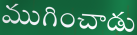
ముగించాడు